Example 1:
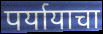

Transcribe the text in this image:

पर्यायाचा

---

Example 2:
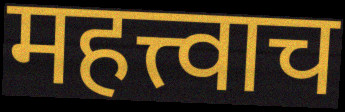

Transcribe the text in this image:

महत्त्वाच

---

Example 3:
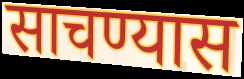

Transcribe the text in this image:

साचण्यास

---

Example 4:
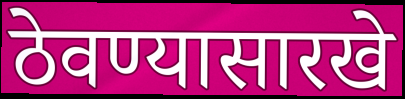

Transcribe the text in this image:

ठेवण्यासारखे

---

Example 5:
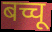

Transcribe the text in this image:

बच्चू